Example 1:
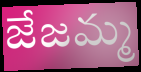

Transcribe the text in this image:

జేజమ్మ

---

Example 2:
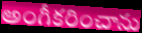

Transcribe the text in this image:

అంగీకరించాను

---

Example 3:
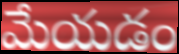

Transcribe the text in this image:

మేయడం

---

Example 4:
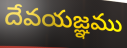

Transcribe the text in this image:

దేవయజ్ఞము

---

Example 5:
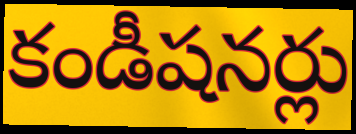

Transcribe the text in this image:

కండీషనర్లు